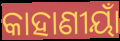
କାହାଣୀୟାଁ